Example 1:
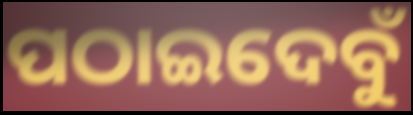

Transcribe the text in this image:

ପଠାଇଦେବୁଁ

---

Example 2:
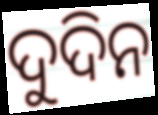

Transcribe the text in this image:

ଦୁଦିନ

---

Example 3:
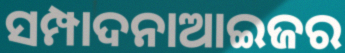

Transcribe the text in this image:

ସମ୍ପାଦନାଆଇଜର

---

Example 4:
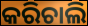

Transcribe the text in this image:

କରିଚାଲି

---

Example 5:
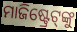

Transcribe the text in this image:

ମାଜିଷ୍ଟ୍ରେଟ୍‌ଙ୍କୁ